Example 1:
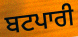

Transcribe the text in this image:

ਬਟਪਾਰੀ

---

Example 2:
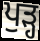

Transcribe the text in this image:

ਪੁੜ੍ਹ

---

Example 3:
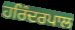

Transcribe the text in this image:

ਹਰਿੰਦਰਪਾਲ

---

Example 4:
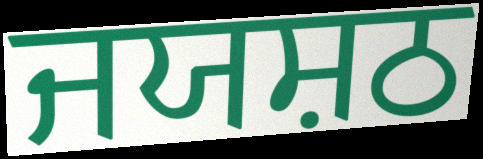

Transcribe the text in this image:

ਜਯਸ਼ਠ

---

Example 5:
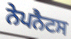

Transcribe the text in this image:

ਨੇਪਨੈਟਸ